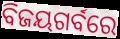
ବିଜୟଗର୍ବରେ